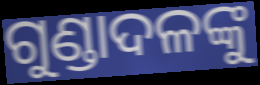
ଗୁଣ୍ଡାଦଳଙ୍କୁ